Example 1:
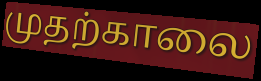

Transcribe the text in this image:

முதற்காலை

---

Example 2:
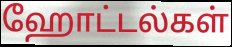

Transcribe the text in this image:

ஹோட்டல்கள்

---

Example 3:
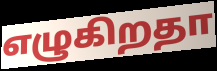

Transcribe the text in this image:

எழுகிறதா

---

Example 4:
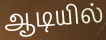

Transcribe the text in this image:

ஆடியில்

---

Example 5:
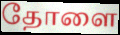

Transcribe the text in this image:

தோளை